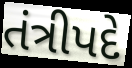
તંત્રીપદે